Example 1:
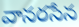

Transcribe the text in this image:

వానరసేన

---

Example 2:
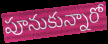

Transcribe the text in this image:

పూనుకున్నారో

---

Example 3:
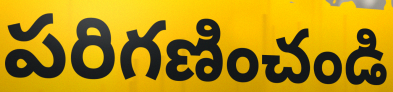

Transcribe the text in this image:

పరిగణించండి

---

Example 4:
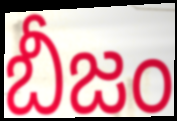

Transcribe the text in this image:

బీజం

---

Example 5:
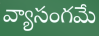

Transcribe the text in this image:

వ్యాసంగమే